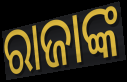
ରାଜାଙ୍କ